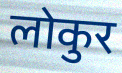
लोकुर